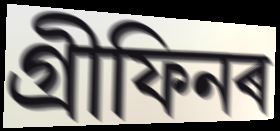
গ্ৰীফিনৰ